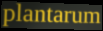
plantarum